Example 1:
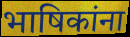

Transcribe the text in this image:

भाषिकांना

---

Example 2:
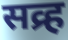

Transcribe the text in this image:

सव्र्ह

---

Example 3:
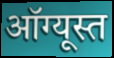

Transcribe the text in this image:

ऑग्यूस्त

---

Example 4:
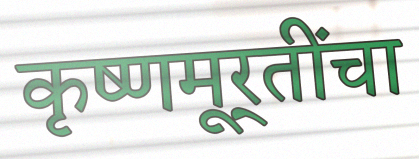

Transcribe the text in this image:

कृष्णमूर्तींचा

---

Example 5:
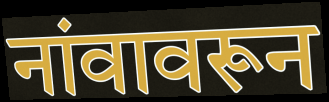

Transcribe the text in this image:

नांवावरून